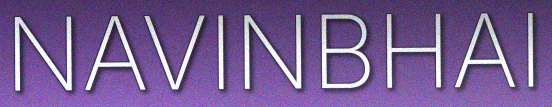
NAVINBHAI